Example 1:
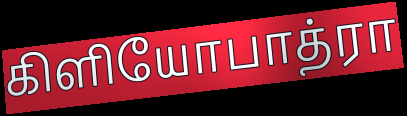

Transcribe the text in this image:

கிளியோபாத்ரா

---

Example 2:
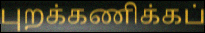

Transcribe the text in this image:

புறக்கணிக்கப்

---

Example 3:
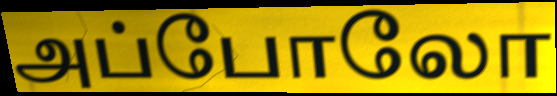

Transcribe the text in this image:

அப்போலோ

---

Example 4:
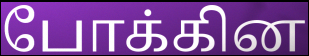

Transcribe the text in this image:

போக்கின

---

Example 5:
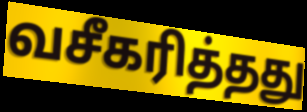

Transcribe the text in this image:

வசீகரித்தது